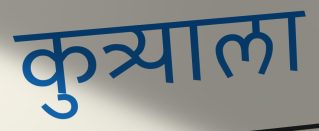
कुत्र्याला